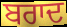
ਬਰਾਦ